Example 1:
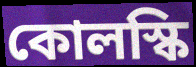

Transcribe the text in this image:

কোলস্কি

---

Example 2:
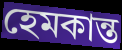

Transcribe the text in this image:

হেমকান্ত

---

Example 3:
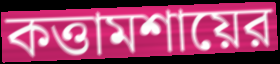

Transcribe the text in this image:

কত্তামশায়ের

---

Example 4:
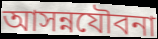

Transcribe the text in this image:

আসন্নযৌবনা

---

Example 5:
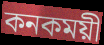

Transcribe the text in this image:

কনকময়ী